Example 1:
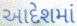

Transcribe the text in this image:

આદેશમાં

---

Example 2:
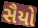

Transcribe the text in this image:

સૈયો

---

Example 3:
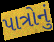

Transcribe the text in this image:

પાત્રોનું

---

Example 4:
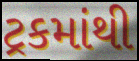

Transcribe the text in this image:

ટ્રકમાંથી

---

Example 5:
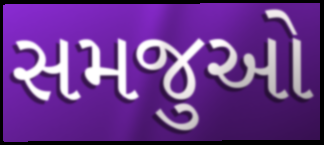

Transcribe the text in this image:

સમજુઓ